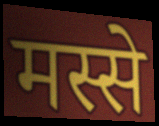
मस्से